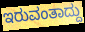
ಇರುವಂತಾದ್ದು